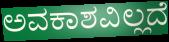
ಅವಕಾಶವಿಲ್ಲದೆ